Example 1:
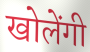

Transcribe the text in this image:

खोलेंगी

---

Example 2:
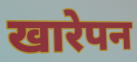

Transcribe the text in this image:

खारेपन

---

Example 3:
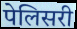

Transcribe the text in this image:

पेलिसरी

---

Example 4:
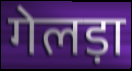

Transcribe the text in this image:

गेलड़ा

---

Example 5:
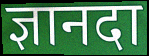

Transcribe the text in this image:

ज्ञानदा